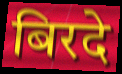
बिरदे